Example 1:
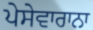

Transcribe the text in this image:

ਪੇਸੇਵਾਰਾਨਾ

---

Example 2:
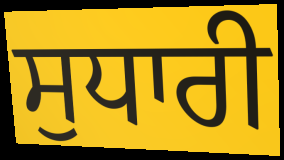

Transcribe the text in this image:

ਸੁਧਾਰੀ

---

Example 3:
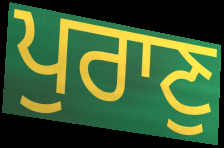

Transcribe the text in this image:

ਪੁਰਾਣੁ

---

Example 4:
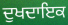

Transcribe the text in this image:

ਦੁਖਦਾਇਕ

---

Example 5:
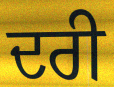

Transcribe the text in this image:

ਦਰੀ